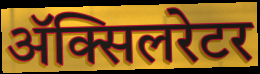
ॲक्सिलरेटर